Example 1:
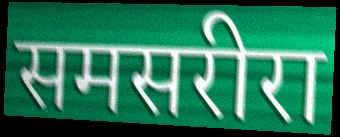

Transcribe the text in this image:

समसरीरा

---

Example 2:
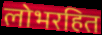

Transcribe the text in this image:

लोभरहित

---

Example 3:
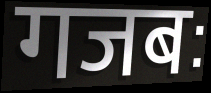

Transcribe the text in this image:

गजबः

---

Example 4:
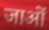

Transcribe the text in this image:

जाओं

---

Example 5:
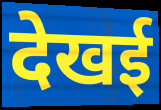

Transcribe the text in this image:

देखई